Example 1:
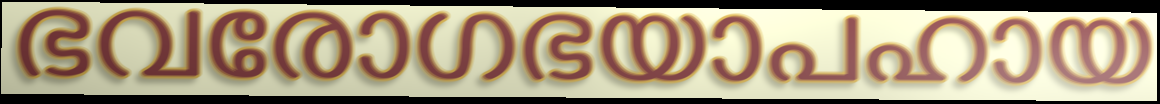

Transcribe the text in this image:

ഭവരോഗഭയാപഹായ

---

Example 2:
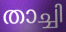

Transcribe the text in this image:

താച്ചി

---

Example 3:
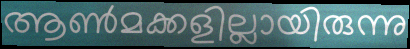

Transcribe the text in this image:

ആൺമക്കളില്ലായിരുന്നു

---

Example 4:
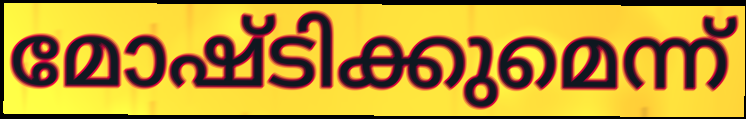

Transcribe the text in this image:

മോഷ്ടിക്കുമെന്ന്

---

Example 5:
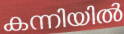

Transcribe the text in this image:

കന്നിയിൽ